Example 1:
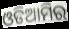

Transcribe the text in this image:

ଓଡିଆମିର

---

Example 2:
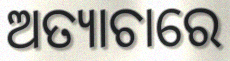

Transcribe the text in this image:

ଅତ୍ୟାଚାରେ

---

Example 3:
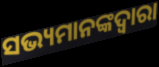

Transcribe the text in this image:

ସଭ୍ୟମାନଙ୍କଦ୍ୱାରା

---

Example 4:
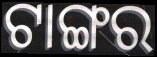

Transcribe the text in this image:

ଟାଙ୍ଗର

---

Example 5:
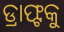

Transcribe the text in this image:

ଡ୍ରାଫ୍ଟକୁ